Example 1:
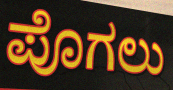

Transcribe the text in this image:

ಪೊಗಲು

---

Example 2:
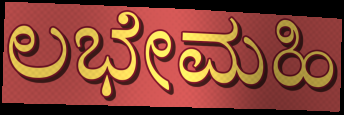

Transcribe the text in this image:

ಲಭೇಮಹಿ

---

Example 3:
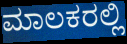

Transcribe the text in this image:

ಮಾಲಕರಲ್ಲಿ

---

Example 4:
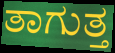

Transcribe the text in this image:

ತಾಗುತ್ತ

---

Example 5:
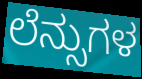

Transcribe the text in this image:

ಲೆನ್ಸುಗಳ